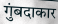
गुंबदाकार